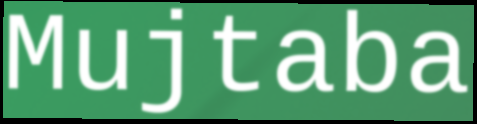
Mujtaba